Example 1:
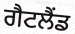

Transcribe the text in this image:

ਗੈਟਲੈਂਡ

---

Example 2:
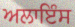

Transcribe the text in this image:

ਅਲਾਇੰਸ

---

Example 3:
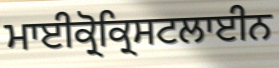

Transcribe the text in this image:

ਮਾਈਕ੍ਰੋਕ੍ਰਿਸਟਲਾਈਨ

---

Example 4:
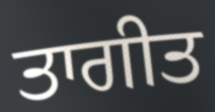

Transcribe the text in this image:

ਤਾਗੀਤ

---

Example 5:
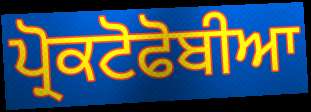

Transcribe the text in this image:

ਪ੍ਰੋਕਟੋਫੋਬੀਆ